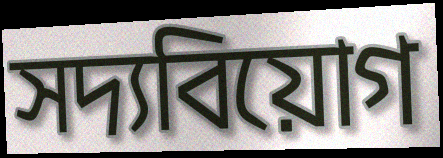
সদ্যবিয়োগ